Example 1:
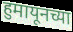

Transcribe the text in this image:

हुमायूनच्या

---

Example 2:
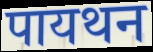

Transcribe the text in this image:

पायथन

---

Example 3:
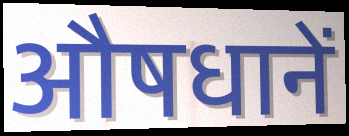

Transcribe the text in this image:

औषधानें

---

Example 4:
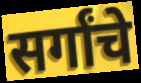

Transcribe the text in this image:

सर्गांचे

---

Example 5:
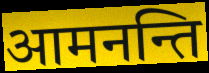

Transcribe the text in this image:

आमनन्ति